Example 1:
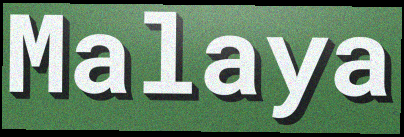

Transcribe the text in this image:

Malaya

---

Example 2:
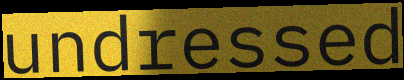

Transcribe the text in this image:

undressed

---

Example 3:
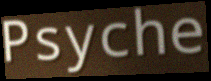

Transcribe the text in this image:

Psyche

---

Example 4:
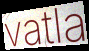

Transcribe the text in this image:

vatla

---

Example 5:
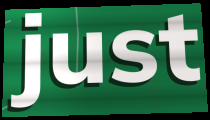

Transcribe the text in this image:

just